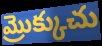
మ్రొక్కుచు